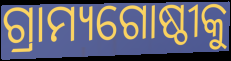
ଗ୍ରାମ୍ୟଗୋଷ୍ଠୀକୁ